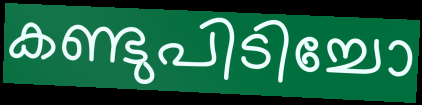
കണ്ടുപിടിച്ചോ